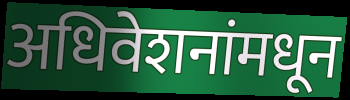
अधिवेशनांमधून